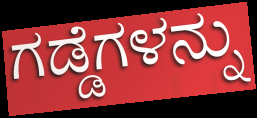
ಗಡ್ಡೆಗಳನ್ನು